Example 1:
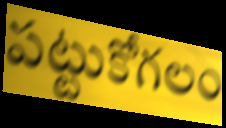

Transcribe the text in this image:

పట్టుకోగలం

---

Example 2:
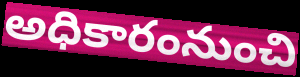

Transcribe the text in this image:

అధికారంనుంచి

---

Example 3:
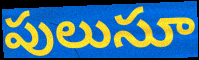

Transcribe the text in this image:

పులుసూ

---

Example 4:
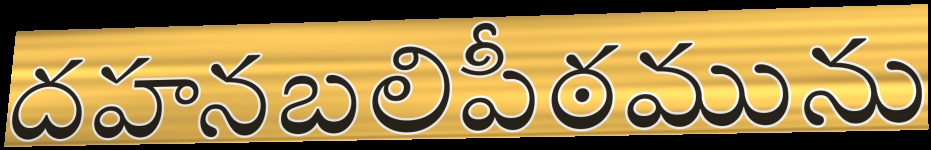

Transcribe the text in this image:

దహనబలిపీఠమును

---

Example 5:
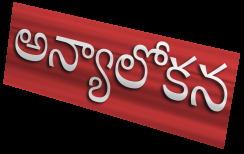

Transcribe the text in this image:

అన్యాలోకన